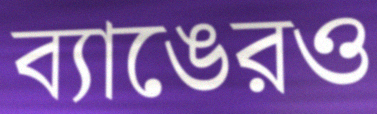
ব্যাঙেরও